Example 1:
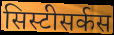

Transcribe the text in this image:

सिस्टीसर्कस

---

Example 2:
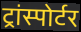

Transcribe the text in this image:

ट्रांस्पोर्टर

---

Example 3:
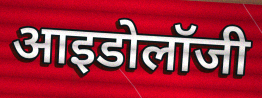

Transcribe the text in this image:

आइडोलॉजी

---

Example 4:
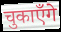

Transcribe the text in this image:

चुकाएँगे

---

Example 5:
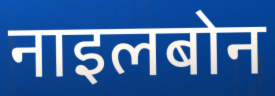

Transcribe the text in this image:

नाइलबोन